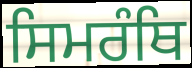
ਸਿਮਰੰਥਿ